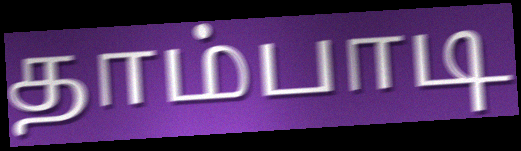
தாம்பாடி